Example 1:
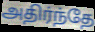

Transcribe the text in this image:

அதிர்ந்தே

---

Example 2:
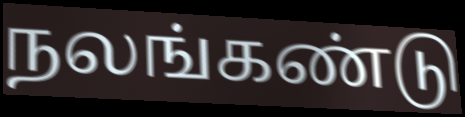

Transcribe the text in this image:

நலங்கண்டு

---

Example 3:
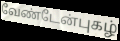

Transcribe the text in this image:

வேண்டேன்புகழ்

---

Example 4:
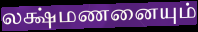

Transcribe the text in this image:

லக்ஷ்மணனையும்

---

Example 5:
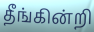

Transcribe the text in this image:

தீங்கின்றி